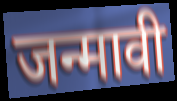
जन्मावी